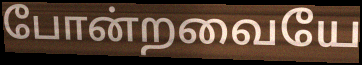
போன்றவையே